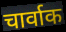
चार्वाक